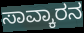
ಸಾವ್ಕಾರನ